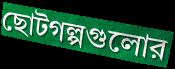
ছোটগল্পগুলোর